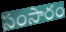
సంసారం